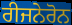
ਰੀਜਨੇਰੋਨ